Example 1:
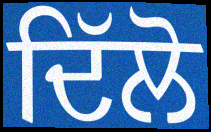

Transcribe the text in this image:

ਦਿੱਲੋ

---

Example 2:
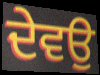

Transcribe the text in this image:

ਦੇਵਉ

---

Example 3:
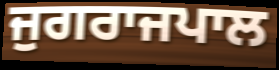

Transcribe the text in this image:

ਜੁਗਰਾਜਪਾਲ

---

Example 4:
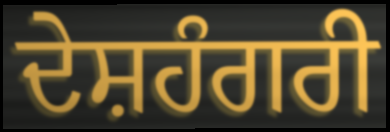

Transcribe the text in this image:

ਦੇਸ਼ਹੰਗਰੀ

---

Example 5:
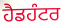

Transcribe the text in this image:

ਹੈਡਹੰਟਰ